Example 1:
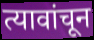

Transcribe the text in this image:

त्यावांचून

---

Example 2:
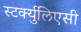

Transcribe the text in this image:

स्टर्क्युलिएसी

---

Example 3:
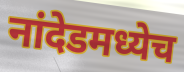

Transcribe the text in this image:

नांदेडमध्येच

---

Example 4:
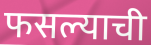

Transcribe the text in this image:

फसल्याची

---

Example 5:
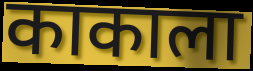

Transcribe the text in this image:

काकाला